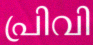
പ്രിവി